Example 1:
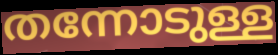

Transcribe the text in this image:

തന്നോടുള്ള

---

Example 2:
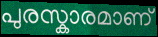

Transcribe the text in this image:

പുരസ്കാരമാണ്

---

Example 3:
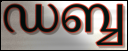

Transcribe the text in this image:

ഡബ്ബ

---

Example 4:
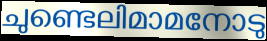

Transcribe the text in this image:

ചുണ്ടെലിമാമനോടു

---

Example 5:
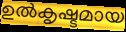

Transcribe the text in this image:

ഉൽകൃഷ്ടമായ